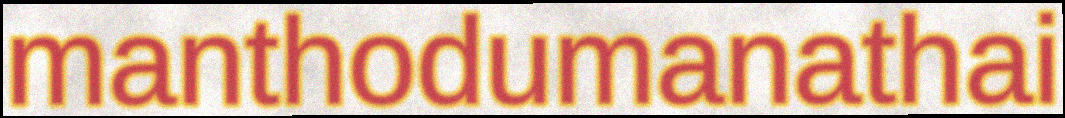
manthodumanathai